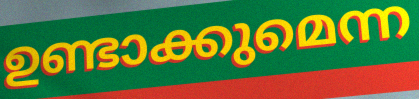
ഉണ്ടാക്കുമെന്ന